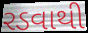
રડવાથી